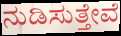
ನುಡಿಸುತ್ತೇವೆ